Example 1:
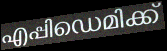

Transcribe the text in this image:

എപ്പിഡെമിക്ക്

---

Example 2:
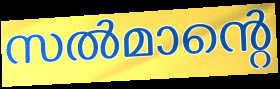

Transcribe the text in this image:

സൽമാന്റെ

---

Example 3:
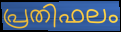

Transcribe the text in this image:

പ്രതിഫലം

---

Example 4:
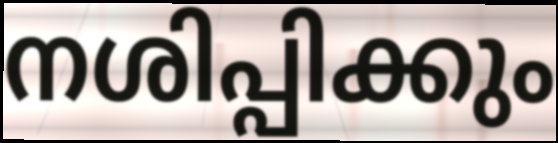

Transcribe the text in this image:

നശിപ്പിക്കും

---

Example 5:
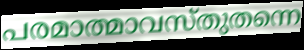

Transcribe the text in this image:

പരമാത്മാവസ്തുതന്നെ